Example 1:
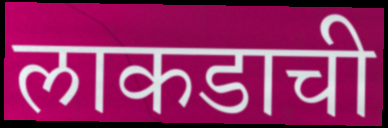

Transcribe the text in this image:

लाकडाची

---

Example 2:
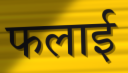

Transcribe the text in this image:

फलाई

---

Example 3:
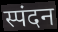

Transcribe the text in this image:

स्पंदन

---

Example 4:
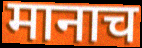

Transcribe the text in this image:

मानाच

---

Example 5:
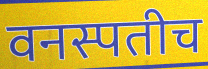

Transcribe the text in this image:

वनस्पतीच